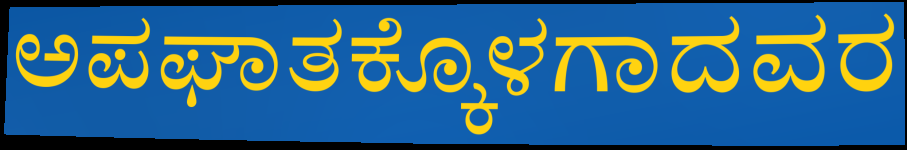
ಅಪಘಾತಕ್ಕೊಳಗಾದವರ